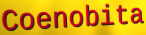
Coenobita